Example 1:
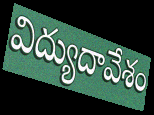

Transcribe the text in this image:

విద్యుదావేశం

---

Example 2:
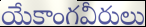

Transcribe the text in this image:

యేకాంగవీరులు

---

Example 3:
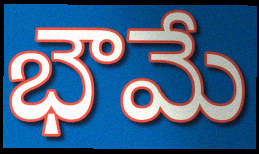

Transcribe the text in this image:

భౌమే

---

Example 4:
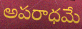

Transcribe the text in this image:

అపరాధమే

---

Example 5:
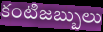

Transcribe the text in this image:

కంటిజబ్బులు